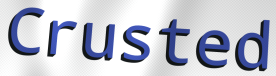
Crusted